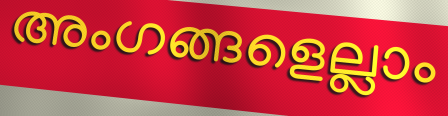
അംഗങ്ങളെല്ലാം